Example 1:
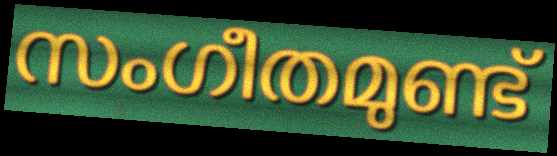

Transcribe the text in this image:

സംഗീതമുണ്ട്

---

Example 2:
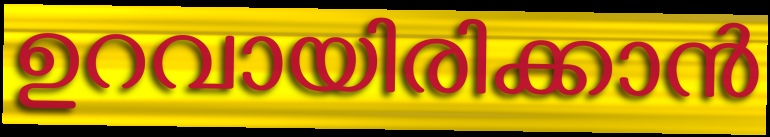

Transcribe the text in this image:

ഉറവായിരിക്കാൻ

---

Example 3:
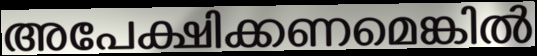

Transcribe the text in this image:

അപേക്ഷിക്കണമെങ്കിൽ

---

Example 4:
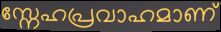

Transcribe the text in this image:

സ്നേഹപ്രവാഹമാണ്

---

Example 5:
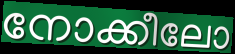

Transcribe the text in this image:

നോക്കീലോ